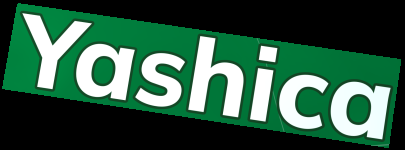
Yashica